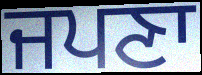
ਜਪਣਾ